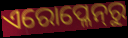
ଏରୋପ୍ଳେନ୍‍ରୁ